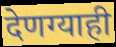
देणग्याही